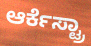
ಆರ್ಕೆಸ್ಟ್ರಾ